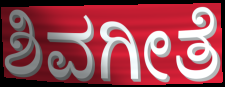
ಶಿವಗೀತೆ